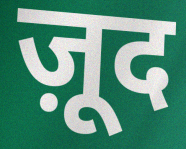
ज़ूद